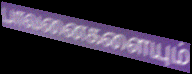
பாவனைகளையும்